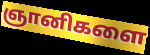
ஞானிகளை